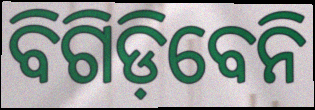
ବିଗିଡ଼ିବେନି